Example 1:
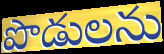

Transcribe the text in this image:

పొడులను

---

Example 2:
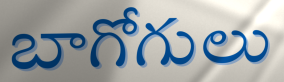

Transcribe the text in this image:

బాగోగులు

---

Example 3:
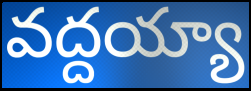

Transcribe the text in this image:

వద్దయ్యా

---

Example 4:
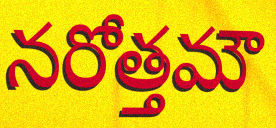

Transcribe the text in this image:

నరోత్తమౌ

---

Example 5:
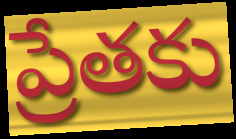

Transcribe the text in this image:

ప్రేతకు